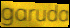
garuda